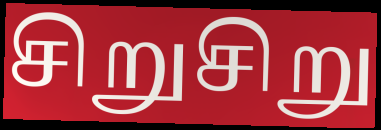
சிறுசிறு